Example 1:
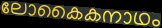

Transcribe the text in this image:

ലോകൈകനാഥം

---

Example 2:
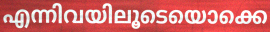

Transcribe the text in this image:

എന്നിവയിലൂടെയൊക്കെ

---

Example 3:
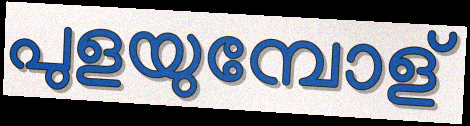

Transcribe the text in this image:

പുളയുമ്പോള്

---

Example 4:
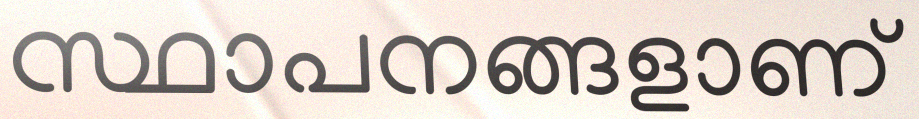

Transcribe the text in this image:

സ്ഥാപനങ്ങളാണ്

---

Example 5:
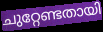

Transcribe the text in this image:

ചുറ്റേണ്ടതായി